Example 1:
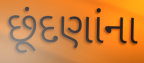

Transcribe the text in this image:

છૂંદણાંના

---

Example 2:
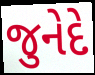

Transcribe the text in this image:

જુનેદે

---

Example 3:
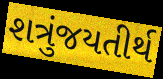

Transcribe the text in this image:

શત્રુંજયતીર્થ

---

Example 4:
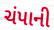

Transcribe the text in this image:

ચંપાની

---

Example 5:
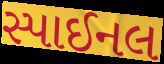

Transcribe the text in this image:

સ્પાઈનલ